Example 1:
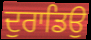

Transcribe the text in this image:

ਦੁਰਾਡਿਉ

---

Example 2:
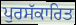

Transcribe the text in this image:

ਪੁਰਸੱਕਾਰਿਤ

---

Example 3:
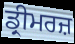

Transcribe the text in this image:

ਡ੍ਰੀਮਰਜ਼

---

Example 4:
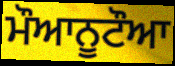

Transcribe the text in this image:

ਮੌਆਨੂਟੌਆ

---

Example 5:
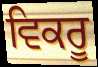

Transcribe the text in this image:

ਵਿਕਰੂ